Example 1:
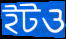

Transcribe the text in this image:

ইটও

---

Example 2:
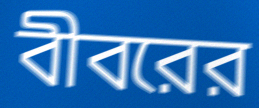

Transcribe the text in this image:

বীবরের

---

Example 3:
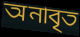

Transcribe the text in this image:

অনাবৃত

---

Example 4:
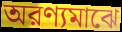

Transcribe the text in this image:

অরণ্যমাঝে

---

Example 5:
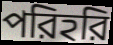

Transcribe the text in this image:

পরিহরি